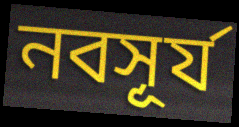
নবসূর্য